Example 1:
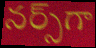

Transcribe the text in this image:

నర్స్‌గా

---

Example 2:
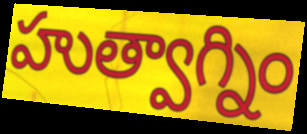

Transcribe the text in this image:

హుత్వాగ్నిం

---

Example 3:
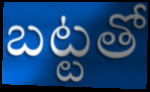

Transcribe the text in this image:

బట్టతో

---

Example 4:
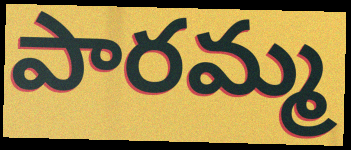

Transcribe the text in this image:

పారమ్మ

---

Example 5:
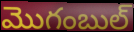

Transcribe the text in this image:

మొగంబుల్